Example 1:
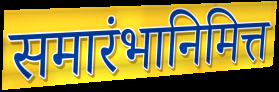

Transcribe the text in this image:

समारंभानिमित्त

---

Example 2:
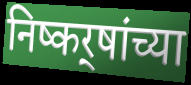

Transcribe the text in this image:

निष्कर्षांच्या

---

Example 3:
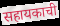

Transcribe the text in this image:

सहायकाची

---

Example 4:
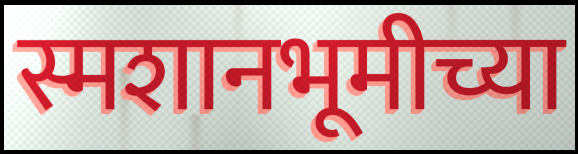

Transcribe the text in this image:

स्मशानभूमीच्या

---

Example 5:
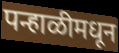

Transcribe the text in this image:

पन्हाळीमधून